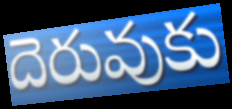
దెరువుకు